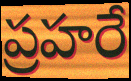
ప్రహరే